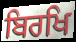
ਬਿਰਖਿ